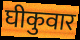
घीकुवार